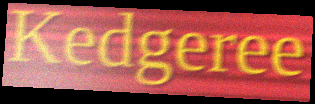
Kedgeree